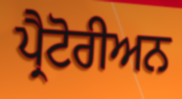
ਪ੍ਰੈਟੋਰੀਅਨ